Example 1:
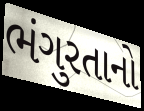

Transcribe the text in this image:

ભંગુરતાનો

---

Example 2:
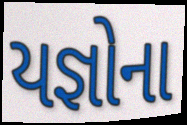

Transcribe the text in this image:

યજ્ઞોના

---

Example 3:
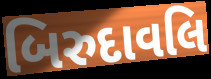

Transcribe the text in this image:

બિરુદાવલિ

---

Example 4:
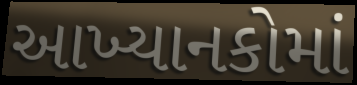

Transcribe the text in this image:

આખ્યાનકોમાં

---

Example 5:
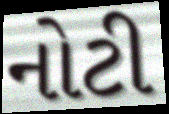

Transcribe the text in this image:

નોટી